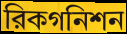
রিকগনিশন